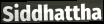
Siddhattha